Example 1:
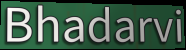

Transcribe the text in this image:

Bhadarvi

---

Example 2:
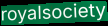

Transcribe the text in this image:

royalsociety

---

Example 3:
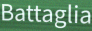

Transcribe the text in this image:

Battaglia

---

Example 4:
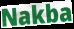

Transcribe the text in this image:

Nakba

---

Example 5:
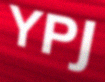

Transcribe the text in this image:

YPJ